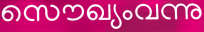
സൌഖ്യംവന്നു